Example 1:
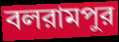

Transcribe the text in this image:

বলরামপুর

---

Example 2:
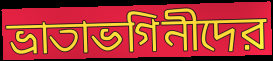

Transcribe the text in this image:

ভ্রাতাভগিনীদের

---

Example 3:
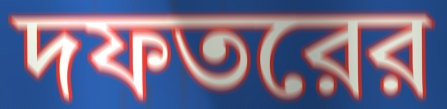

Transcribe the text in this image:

দফতরের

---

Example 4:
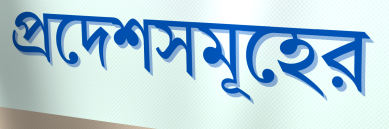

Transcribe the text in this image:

প্রদেশসমূহের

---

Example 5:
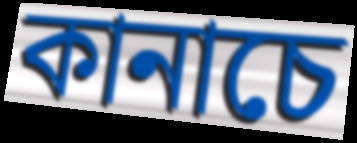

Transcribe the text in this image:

কানাচে